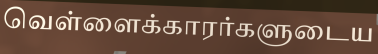
வெள்ளைக்காரர்களுடைய